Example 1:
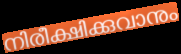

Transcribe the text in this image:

നിരീക്ഷിക്കുവാനും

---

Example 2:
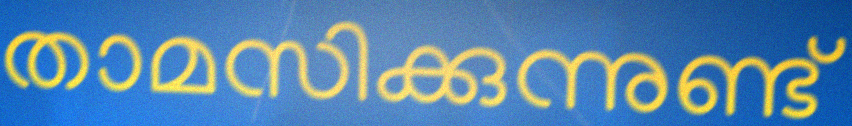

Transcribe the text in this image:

താമസിക്കുന്നുണ്ട്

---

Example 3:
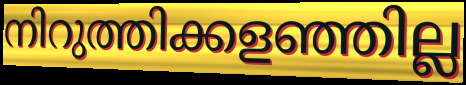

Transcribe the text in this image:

നിറുത്തിക്കളഞ്ഞില്ല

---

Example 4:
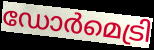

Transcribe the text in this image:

ഡോർമെട്രി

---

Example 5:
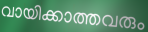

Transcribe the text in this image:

വായിക്കാത്തവരും